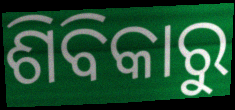
ଶିବିକାରୁ